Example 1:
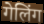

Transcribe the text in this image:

गेलिंग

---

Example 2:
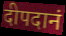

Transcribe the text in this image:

दीपदानं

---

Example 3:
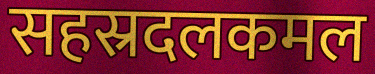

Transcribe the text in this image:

सहस्रदलकमल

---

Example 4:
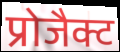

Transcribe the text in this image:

प्रोजैक्ट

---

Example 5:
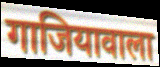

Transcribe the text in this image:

गाजियावाला